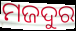
ମଜଦୁର